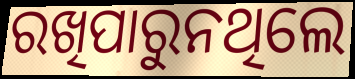
ରଖିପାରୁନଥିଲେ